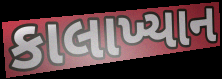
કાલાખ્યાન